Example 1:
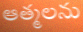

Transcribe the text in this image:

ఆత్మలను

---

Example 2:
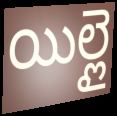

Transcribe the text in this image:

యిల్లై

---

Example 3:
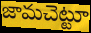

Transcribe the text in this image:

జామచెట్టూ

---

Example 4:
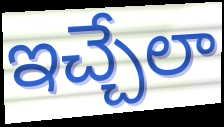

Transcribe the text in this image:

ఇచ్చేలా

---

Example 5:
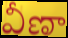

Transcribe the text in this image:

వీణా